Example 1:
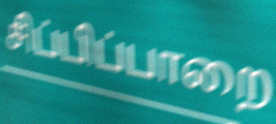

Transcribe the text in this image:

சிப்பிப்பாறை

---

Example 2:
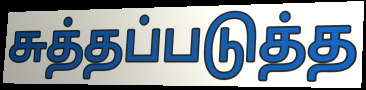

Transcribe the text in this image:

சுத்தப்படுத்த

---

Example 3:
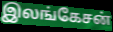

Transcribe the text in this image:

இலங்கேசன்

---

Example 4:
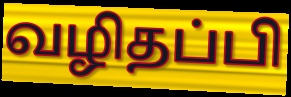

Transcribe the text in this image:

வழிதப்பி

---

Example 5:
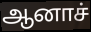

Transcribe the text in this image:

ஆனாச்